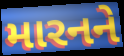
મારનને